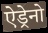
ऐड्रेनो